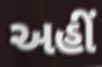
અહીઁ